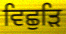
ਵਿਛੁੜਿ